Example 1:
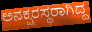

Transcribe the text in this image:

ಅನಕ್ಷರಸ್ಥರಾಗಿದ್ದ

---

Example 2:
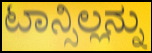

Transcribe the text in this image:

ಟಾನ್ಸಿಲ್ಲನ್ನು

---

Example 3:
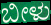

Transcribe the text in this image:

ಬೀಳು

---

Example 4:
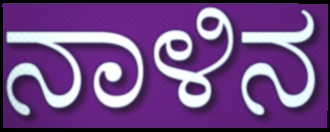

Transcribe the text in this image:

ನಾಳಿನ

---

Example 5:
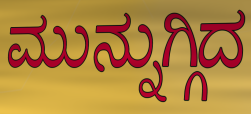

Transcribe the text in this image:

ಮುನ್ನುಗ್ಗಿದ